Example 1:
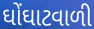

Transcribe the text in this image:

ઘોંઘાટવાળી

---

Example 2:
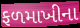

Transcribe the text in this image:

ફળમાખીના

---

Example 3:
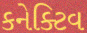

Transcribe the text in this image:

કનેક્ટિવ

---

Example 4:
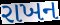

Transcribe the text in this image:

રાખન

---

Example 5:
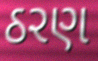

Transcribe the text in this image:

ઠરણ